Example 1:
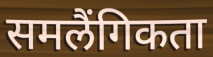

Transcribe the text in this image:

समलैंगिकता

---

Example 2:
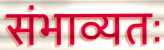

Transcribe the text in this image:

संभाव्यतः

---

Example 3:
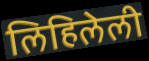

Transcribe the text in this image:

लिहिलेली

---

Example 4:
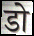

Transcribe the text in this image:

डो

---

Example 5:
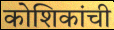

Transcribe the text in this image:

कोशिकांची